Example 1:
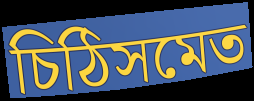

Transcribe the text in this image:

চিঠিসমেত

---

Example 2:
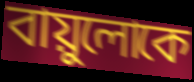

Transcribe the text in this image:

বায়ুলোকে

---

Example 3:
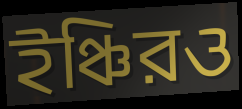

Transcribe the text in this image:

ইঞ্চিরও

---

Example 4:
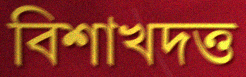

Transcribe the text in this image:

বিশাখদত্ত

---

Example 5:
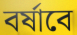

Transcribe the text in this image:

বর্ষাবে